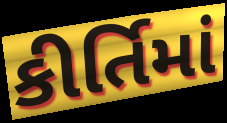
કીર્તિમાં